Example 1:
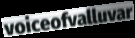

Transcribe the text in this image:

voiceofvalluvar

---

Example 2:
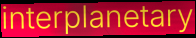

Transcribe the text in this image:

interplanetary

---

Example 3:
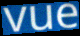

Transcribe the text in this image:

vue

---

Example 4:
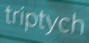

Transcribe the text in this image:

triptych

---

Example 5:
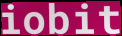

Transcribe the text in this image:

iobit